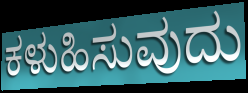
ಕಳುಹಿಸುವುದು